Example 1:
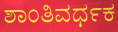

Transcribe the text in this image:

ಶಾಂತಿವರ್ಧಕ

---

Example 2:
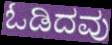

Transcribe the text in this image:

ಓಡಿದವು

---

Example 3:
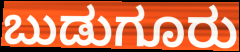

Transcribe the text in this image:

ಬುಡುಗೂರು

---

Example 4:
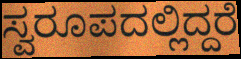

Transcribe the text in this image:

ಸ್ವರೂಪದಲ್ಲಿದ್ದರೆ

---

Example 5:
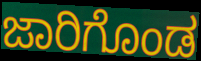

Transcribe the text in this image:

ಜಾರಿಗೊಂಡ